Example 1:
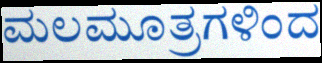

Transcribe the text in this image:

ಮಲಮೂತ್ರಗಳಿಂದ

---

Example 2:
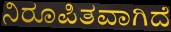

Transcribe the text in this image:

ನಿರೂಪಿತವಾಗಿದೆ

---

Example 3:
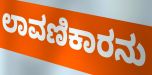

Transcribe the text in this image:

ಲಾವಣಿಕಾರನು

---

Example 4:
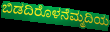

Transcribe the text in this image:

ಬಿಡದಿರೊಳನೆಮ್ಮದಿಯ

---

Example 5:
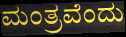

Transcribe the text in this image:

ಮಂತ್ರವೆಂದು